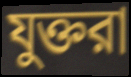
যুক্তরা